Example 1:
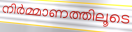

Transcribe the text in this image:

നിർമ്മാണത്തിലൂടെ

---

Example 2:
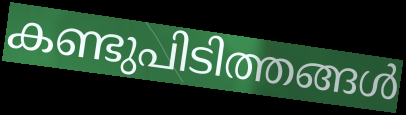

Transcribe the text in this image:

കണ്ടുപിടിത്തങ്ങൾ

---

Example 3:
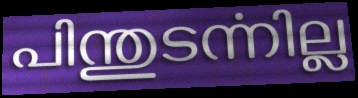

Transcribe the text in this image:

പിന്തുടൎന്നില്ല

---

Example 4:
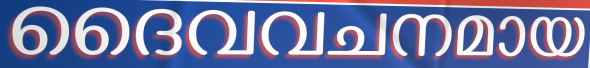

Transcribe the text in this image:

ദൈവവചനമായ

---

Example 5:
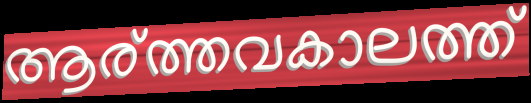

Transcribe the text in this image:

ആര്ത്തവകാലത്ത്